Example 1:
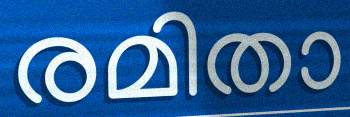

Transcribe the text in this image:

രമിതാ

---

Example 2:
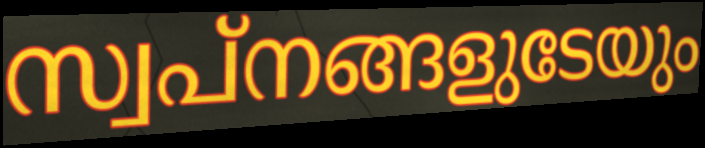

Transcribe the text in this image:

സ്വപ്നങ്ങളുടേയും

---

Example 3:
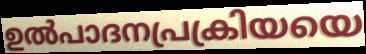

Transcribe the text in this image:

ഉൽപാദനപ്രക്രിയയെ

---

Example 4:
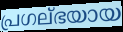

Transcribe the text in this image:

പ്രഗല്ഭയായ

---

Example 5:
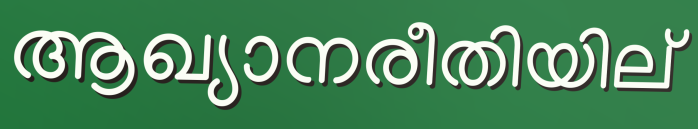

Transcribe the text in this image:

ആഖ്യാനരീതിയില്